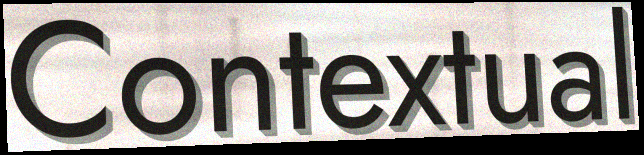
Contextual